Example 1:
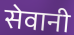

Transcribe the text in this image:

सेवानी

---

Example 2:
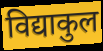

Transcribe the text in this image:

विद्याकुल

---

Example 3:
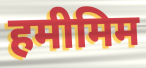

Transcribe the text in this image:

हमीमिम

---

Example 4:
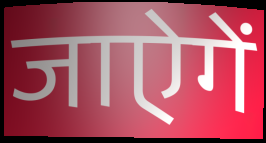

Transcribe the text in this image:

जाऐगें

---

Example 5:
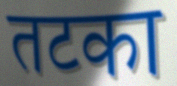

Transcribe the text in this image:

तटका